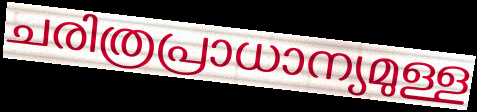
ചരിത്രപ്രാധാന്യമുള്ള